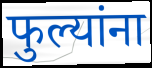
फुल्यांना